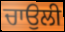
ਚਾਉਲੀ